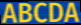
ABCDA